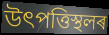
উৎপত্তিস্থলৰ